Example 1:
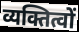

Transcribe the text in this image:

व्यक्तित्वों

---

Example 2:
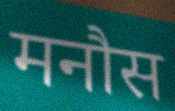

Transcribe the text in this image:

मनौस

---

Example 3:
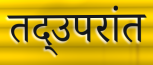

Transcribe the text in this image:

तद्उपरांत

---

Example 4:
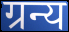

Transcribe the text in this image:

ग्रन्य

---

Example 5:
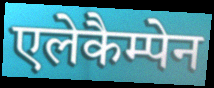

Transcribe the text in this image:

एलेकैम्पेन